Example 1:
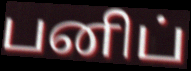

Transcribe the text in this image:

பனிப்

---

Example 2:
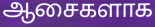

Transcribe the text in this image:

ஆசைகளாக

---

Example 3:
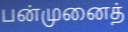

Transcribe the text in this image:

பன்முனைத்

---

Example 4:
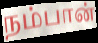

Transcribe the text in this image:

நம்பான்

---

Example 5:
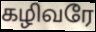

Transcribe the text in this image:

கழிவரே